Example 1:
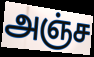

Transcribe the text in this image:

அஞ்ச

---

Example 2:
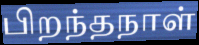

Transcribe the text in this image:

பிறந்தநாள்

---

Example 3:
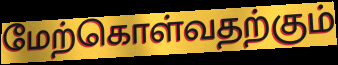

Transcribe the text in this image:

மேற்கொள்வதற்கும்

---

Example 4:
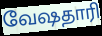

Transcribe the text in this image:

வேஷதாரி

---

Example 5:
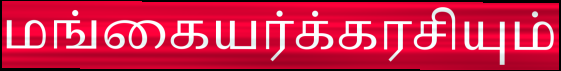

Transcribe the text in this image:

மங்கையர்க்கரசியும்